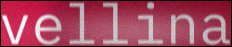
vellina